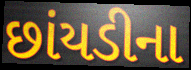
છાંયડીના